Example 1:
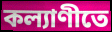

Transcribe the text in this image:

কল্যাণীতে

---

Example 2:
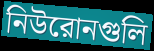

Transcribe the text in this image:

নিউরোনগুলি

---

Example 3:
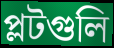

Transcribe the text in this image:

প্লটগুলি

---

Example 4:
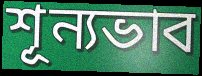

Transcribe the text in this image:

শূন্যভাব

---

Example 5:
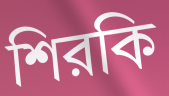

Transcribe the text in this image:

শিরকি